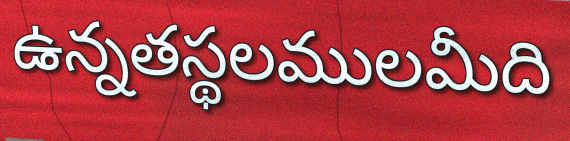
ఉన్నతస్థలములమీది